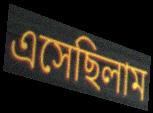
এসেছিলাম